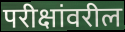
परीक्षांवरील